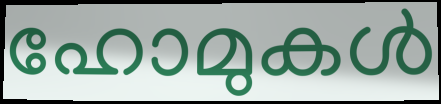
ഹോമുകൾ